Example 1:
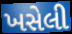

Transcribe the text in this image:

ખસેલી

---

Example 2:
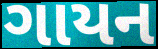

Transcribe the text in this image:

ગાયન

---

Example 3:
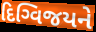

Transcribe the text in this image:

દિગ્વિજયને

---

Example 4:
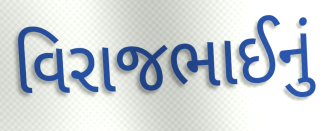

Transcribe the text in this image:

વિરાજભાઈનું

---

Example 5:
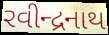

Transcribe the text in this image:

રવીન્દ્રનાથ